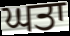
ਘਤਾ